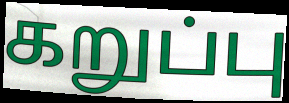
கறுப்பு